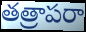
తత్రాపరా